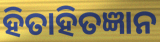
ହିତାହିତଜ୍ଞାନ